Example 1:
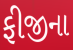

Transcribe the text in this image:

ફીજીના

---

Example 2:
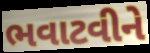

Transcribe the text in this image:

ભવાટવીને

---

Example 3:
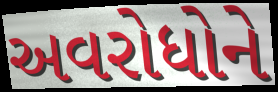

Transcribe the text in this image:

અવરોધોને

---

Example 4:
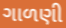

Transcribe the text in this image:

ગાળણી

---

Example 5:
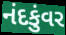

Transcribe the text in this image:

નંદકુંવર